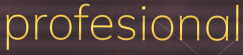
profesional